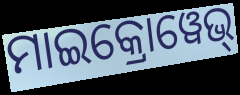
ମାଇକ୍ରୋୱେଭ୍